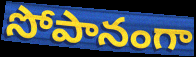
సోపానంగా